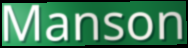
Manson